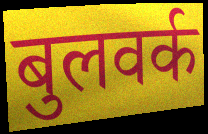
बुलवर्क